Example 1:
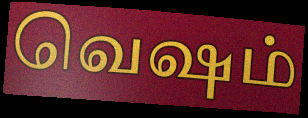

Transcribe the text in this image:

வெஷம்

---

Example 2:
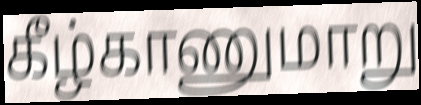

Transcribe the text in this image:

கீழ்காணுமாறு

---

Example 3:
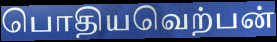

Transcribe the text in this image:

பொதியவெற்பன்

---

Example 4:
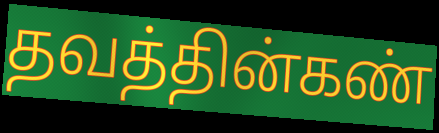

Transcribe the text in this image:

தவத்தின்கண்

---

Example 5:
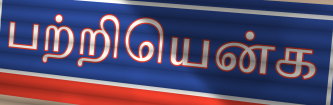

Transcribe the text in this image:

பற்றியென்க